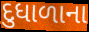
દુધાળાના